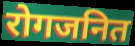
रोगजनित